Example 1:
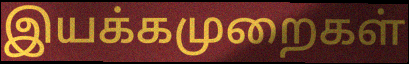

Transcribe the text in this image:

இயக்கமுறைகள்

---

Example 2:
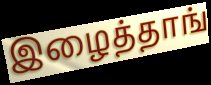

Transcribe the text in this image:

இழைத்தாங்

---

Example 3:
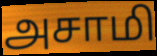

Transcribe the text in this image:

அசாமி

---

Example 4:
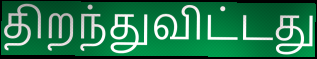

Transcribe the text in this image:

திறந்துவிட்டது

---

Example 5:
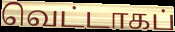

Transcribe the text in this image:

வெட்டாகப்